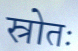
स्रोतः